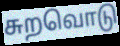
சுறவொடு